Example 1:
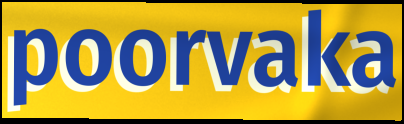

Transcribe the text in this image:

poorvaka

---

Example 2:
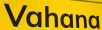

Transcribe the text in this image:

Vahana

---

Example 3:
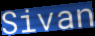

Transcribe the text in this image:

Sivan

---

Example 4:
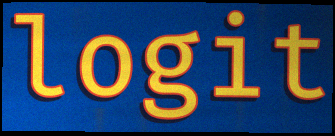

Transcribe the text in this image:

logit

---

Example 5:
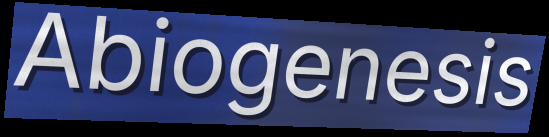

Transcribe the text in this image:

Abiogenesis